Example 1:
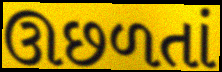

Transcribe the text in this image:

ઊછળતાં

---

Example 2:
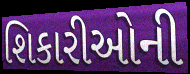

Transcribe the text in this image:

શિકારીઓની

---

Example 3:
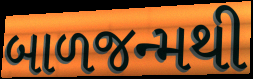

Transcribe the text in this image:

બાળજન્મથી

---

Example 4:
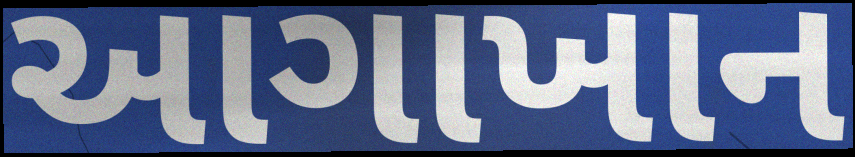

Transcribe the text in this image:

આગાખાન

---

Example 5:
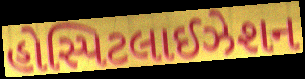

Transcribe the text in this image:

હોસ્પિટલાઈઝેશન